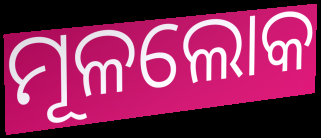
ମୂଳଲୋକ